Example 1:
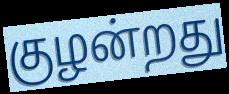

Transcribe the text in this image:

குழன்றது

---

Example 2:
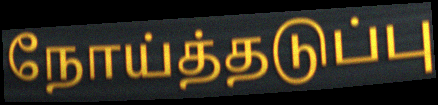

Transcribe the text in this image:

நோய்த்தடுப்பு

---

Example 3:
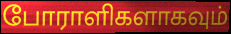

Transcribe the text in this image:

போராளிகளாகவும்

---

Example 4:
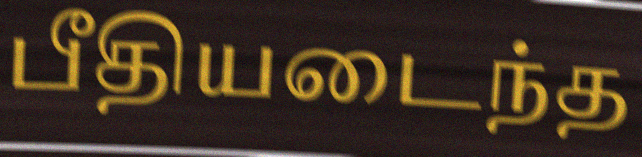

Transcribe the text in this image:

பீதியடைந்த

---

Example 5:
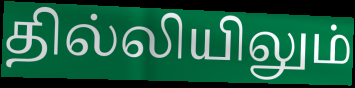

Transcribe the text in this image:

தில்லியிலும்